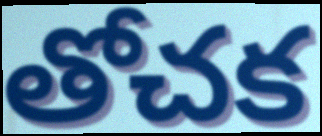
తోచక